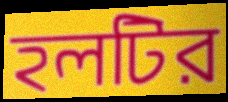
হলটির